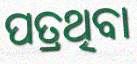
ପତ୍ରଥିବା